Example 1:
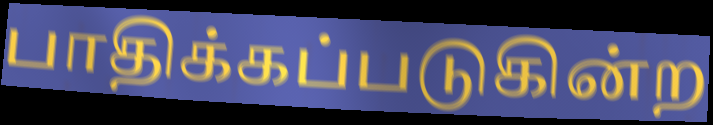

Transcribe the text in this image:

பாதிக்கப்படுகின்ற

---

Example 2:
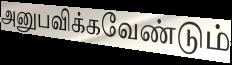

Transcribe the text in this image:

அனுபவிக்கவேண்டும்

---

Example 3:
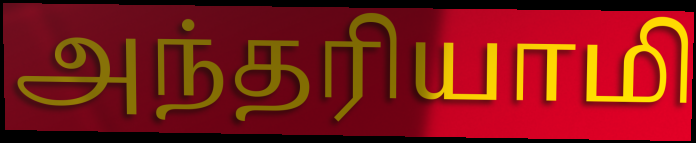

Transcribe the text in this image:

அந்தரியாமி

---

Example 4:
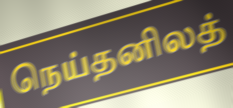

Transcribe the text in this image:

நெய்தனிலத்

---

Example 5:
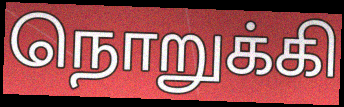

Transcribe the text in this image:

நொறுக்கி